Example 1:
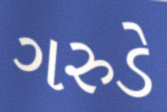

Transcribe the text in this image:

ગરુડે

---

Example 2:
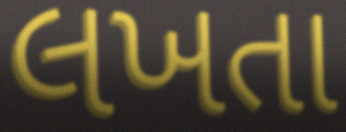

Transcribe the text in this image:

લખતા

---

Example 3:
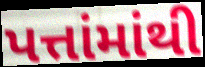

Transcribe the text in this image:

પત્તાંમાંથી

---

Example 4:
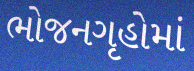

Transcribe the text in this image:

ભોજનગૃહોમાં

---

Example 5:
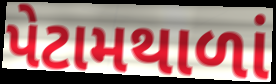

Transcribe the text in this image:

પેટામથાળાં